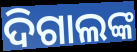
ଦିଗାଲଙ୍କ